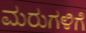
ಮರುಗಳಿಗೆ